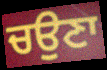
ਚਉਣਾ